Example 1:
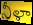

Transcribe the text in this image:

నీళా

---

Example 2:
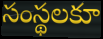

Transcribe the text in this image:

సంస్థలకూ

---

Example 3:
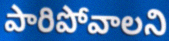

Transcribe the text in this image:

పారిపోవాలని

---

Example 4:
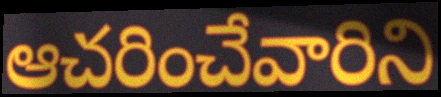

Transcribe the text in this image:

ఆచరించేవారిని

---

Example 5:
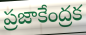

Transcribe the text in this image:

ప్రజాకేంద్రక